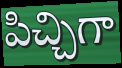
పిచ్చిగా